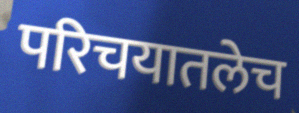
परिचयातलेच